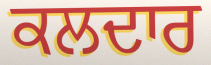
ਕਲਦਾਰ